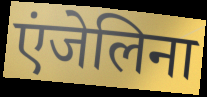
एंजेलिना